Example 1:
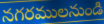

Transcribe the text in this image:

నగరములనుండి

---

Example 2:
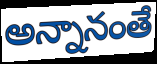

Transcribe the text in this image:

అన్నానంతే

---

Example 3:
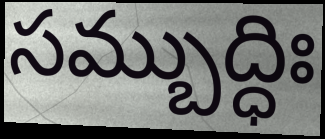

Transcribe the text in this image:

సమ్బుద్ధిః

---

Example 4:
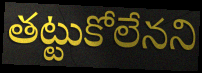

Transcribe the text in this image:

తట్టుకోలేనని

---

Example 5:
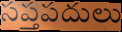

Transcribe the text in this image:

సప్తపదులు